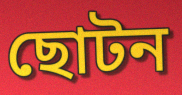
ছোটন